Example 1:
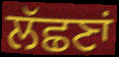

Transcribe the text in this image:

ਲੱਛਣਾਂ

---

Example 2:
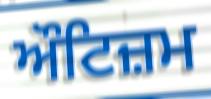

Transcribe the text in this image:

ਔਟਿਜ਼ਮ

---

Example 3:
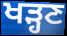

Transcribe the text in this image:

ਖੜ੍ਹਣ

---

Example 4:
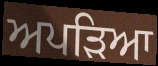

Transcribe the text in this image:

ਅਪੜਿਆ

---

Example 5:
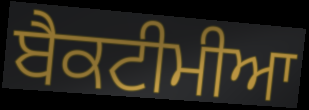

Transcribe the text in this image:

ਬੈਕਟੀਮੀਆ